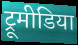
ट्रूमीडिया